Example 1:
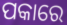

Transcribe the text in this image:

ପକାରେ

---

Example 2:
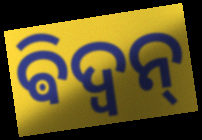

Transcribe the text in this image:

ଵିଦ୍ଵନ୍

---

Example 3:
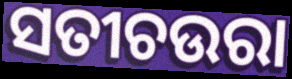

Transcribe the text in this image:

ସତୀଚଉରା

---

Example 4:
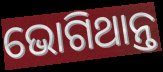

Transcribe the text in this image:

ଭୋଗିଥାନ୍ତ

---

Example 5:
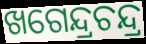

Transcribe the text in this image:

ଖଗେନ୍ଦ୍ରଚନ୍ଦ୍ର